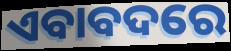
ଏବାବଦରେ